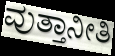
ವುತ್ತಾನೀತಿ